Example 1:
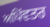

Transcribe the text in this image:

ਅਪਿੱਵਤਰ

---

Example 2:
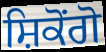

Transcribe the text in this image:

ਸ਼ਿਕੋਂਗੋ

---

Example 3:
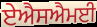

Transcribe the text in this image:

ਏਐਸਐਮਈ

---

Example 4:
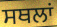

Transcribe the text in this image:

ਸਥਲਾਂ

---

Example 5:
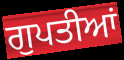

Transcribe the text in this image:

ਗੁਪਤੀਆਂ